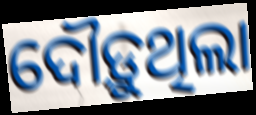
ଦୌଡ଼ୁଥିଲା